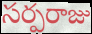
సర్పరాజు